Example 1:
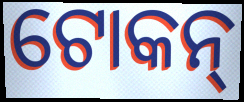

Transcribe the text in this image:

ଟୋକନ୍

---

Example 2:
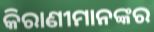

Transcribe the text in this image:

କିରାଣୀମାନଙ୍କର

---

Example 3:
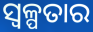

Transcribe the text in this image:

ସ୍ଵଳ୍ପତାର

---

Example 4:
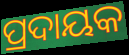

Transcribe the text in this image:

ପ୍ରଦାୟକ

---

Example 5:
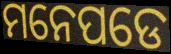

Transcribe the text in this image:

ମନେପଡେ